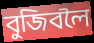
বুজিবলৈ